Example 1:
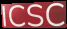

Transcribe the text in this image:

ICSC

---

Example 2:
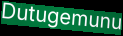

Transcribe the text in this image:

Dutugemunu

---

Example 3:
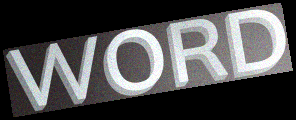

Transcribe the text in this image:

WORD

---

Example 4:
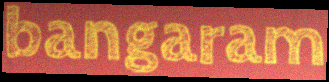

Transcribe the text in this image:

bangaram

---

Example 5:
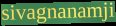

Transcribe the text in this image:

sivagnanamji